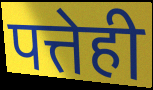
पत्तेही